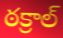
ఠక్రాల్